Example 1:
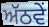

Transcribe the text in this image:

ਅੱਠਵੇਂ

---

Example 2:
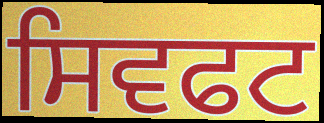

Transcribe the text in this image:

ਸਿਵਫਟ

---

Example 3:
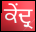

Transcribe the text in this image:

ਕੇਂਦ੍ਰ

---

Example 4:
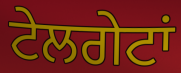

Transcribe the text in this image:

ਟੇਲਗੇਟਾਂ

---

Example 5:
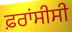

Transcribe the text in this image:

ਫ਼ਰਾਂਸੀਸੀ